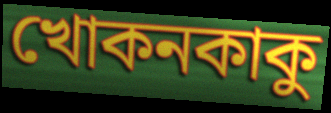
খোকনকাকু